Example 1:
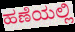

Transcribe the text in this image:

ಹಣೆಯಲ್ಲಿ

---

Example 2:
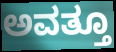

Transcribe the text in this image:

ಅವತ್ತೂ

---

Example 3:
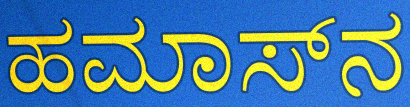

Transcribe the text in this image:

ಹಮಾಸ್‌ನ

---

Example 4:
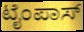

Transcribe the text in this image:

ಟೈಂಪಾಸ್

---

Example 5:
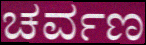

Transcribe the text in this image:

ಚರ್ವಣ